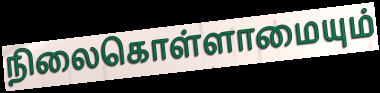
நிலைகொள்ளாமையும்